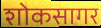
शोकसागर